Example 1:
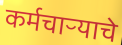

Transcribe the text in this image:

कर्मचाऱ्याचे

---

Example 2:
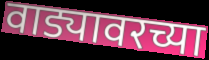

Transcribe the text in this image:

वाड्यावरच्या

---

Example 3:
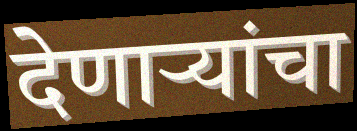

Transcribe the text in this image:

देणाऱ्यांचा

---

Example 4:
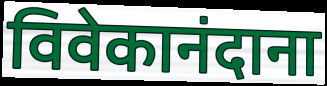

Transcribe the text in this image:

विवेकानंदाना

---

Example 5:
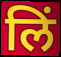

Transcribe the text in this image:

लिं